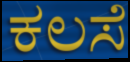
ಕಲಸೆ